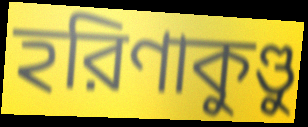
হরিণাকুণ্ডু